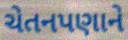
ચેતનપણાને